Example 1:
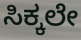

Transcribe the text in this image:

ಸಿಕ್ಕಲೇ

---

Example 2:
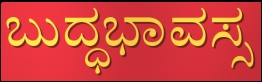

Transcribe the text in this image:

ಬುದ್ಧಭಾವಸ್ಸ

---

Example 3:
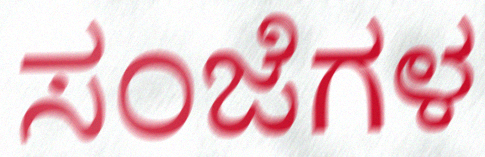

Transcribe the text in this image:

ಸಂಜೆಗಳ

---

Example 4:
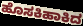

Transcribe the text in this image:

ಹೊಸಕಿಹಾಕಿದ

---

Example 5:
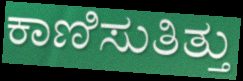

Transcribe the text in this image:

ಕಾಣಿಸುತಿತ್ತು